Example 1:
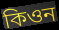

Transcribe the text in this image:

কিওন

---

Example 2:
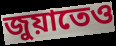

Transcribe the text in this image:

জুয়াতেও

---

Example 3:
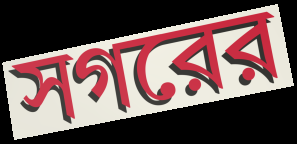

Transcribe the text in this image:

সগরের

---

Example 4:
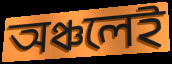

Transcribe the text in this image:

অঞ্চলেই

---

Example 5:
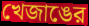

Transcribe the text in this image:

খেজাঙের